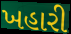
ખહારી